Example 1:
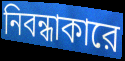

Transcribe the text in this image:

নিবন্ধাকারে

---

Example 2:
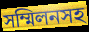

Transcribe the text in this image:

সম্মিলনসহ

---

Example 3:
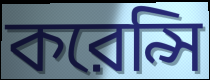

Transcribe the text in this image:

করেন্সি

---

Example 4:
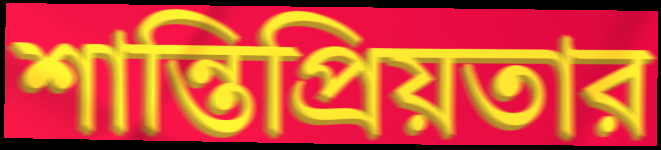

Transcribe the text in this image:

শান্তিপ্রিয়তার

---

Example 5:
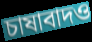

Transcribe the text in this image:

চাষাবাদও